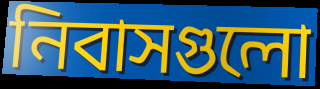
নিবাসগুলো